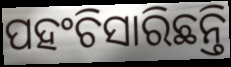
ପହଂଚିସାରିଛନ୍ତି